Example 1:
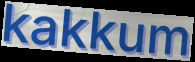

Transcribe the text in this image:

kakkum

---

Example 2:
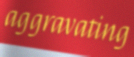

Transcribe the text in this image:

aggravating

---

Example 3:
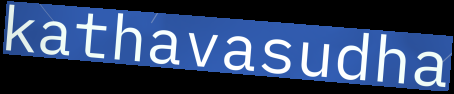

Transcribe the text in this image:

kathavasudha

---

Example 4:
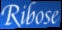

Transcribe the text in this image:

Ribose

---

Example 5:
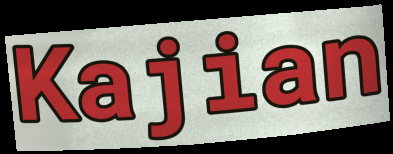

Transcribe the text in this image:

Kajian